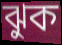
ঝুক